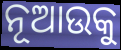
ନୂଆଉକୁ